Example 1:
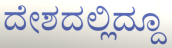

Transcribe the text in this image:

ದೇಶದಲ್ಲಿದ್ದೂ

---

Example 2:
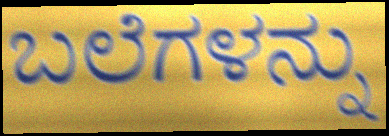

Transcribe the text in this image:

ಬಲೆಗಳನ್ನು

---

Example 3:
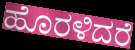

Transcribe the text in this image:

ಹೊರಳಿದರೆ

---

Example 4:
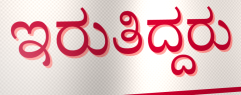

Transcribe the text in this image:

ಇರುತಿದ್ದರು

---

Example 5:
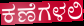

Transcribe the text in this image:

ಕಣೆಗಳಲಿ